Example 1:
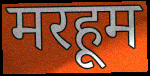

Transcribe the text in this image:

मरहूम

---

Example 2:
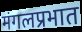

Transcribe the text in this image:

मंगलप्रभात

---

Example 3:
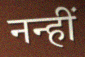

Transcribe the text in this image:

नन्‍हीं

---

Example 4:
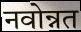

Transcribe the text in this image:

नवोन्नत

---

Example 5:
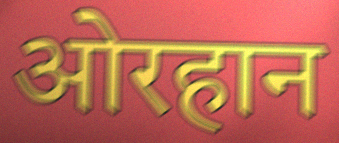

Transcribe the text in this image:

ओरहान